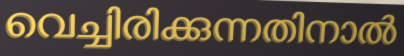
വെച്ചിരിക്കുന്നതിനാൽ